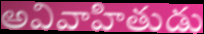
అవివాహితుడు